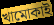
খামোকাই